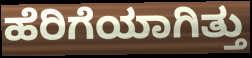
ಹೆರಿಗೆಯಾಗಿತ್ತು